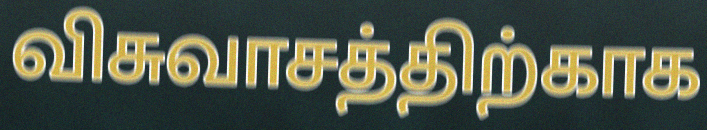
விசுவாசத்திற்காக